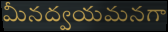
మీనద్వయమనగా